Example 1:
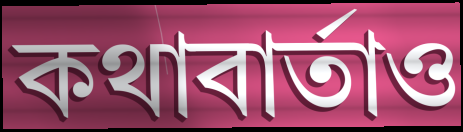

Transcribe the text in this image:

কথাবার্তাও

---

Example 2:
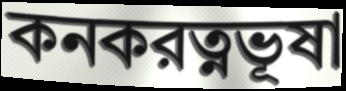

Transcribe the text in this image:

কনকরত্নভূষা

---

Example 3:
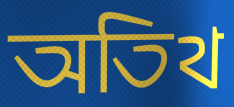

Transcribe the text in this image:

অতিথ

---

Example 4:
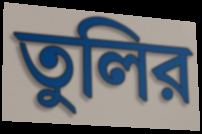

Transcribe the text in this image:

তুলির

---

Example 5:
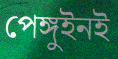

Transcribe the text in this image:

পেঙ্গুইনই